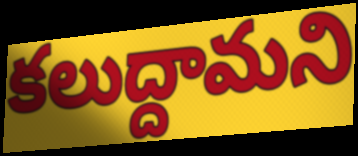
కలుద్దామని